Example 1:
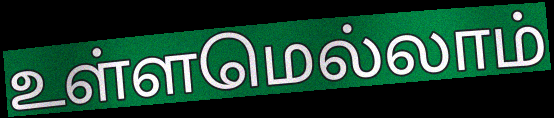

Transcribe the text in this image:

உள்ளமெல்லாம்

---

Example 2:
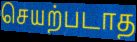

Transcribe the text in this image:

செயற்படாத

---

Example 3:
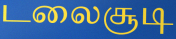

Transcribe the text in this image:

டலைசூடி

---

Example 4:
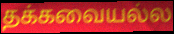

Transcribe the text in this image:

தக்கவையல்ல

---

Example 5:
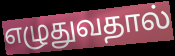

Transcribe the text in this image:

எழுதுவதால்